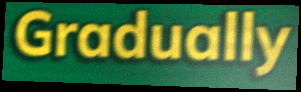
Gradually